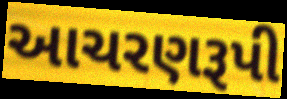
આચરણરૂપી